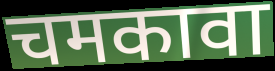
चमकावा